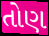
તોણ